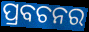
ପ୍ରବଚନର